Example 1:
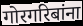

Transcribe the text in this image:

गोरगरिबांना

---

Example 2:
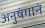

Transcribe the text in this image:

अनुषंगानं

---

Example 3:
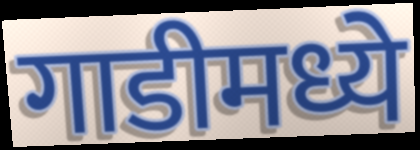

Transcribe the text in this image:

गाडीमध्ये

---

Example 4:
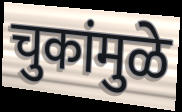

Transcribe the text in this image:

चुकांमुळे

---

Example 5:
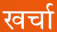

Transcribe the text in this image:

खर्चा